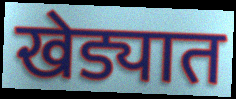
खेड्यात